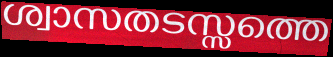
ശ്വാസതടസ്സത്തെ